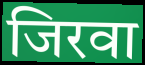
जिरवा